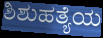
ಶಿಶುಹತ್ಯೆಯ